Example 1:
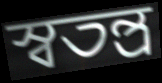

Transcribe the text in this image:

স্বতন্ত্র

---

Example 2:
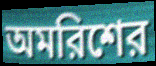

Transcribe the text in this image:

অমরিশের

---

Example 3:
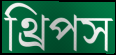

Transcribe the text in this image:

থ্রিপস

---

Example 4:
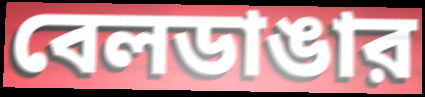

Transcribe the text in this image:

বেলডাঙার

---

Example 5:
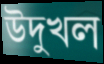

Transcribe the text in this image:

উদুখল